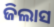
ଜିଲାସ